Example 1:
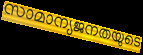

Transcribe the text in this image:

സാമാന്യജനതയുടെ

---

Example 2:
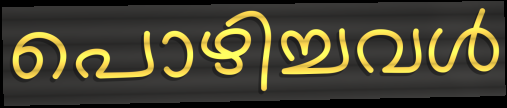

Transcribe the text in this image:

പൊഴിച്ചവൾ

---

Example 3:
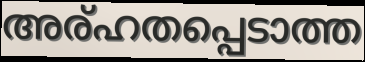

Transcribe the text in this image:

അര്ഹതപ്പെടാത്ത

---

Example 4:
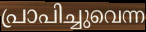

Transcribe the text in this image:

പ്രാപിച്ചുവെന്ന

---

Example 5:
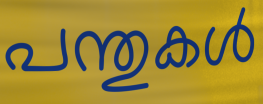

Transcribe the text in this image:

പന്തുകൾ